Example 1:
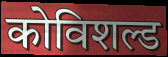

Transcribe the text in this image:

कोविशल्ड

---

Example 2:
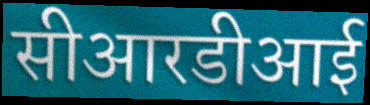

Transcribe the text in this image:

सीआरडीआई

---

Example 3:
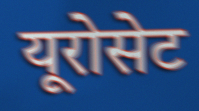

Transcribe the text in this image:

यूरोसेट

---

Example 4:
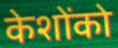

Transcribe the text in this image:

केशोंको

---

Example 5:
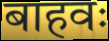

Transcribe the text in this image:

बाहवः